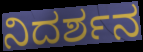
ನಿದರ್ಶನ